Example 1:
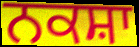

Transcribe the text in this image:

ਨਕਸ਼ਾ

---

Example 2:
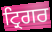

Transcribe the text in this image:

ਟ੍ਰਿਗਰ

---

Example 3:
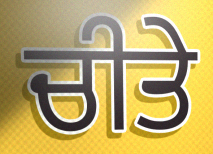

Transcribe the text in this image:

ਚੀਤੇ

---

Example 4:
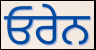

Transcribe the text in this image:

ਓਰੇਨ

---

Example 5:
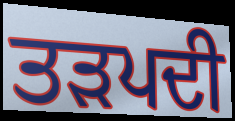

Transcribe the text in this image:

ਤੜਪਦੀ